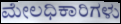
ಮೇಲಧಿಕಾರಿಗಳು